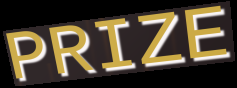
PRIZE